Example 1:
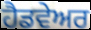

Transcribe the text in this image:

ਹੈਡਵੇਅਰ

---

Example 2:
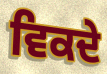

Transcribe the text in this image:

ਵਿਕਦੇ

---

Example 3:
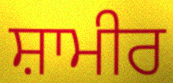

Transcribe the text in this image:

ਸ਼ਾਮੀਰ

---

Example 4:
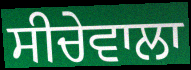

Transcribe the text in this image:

ਸੀਚੇਵਾਲਾ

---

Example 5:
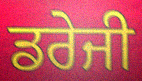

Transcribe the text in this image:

ਡਰੇਜੀ